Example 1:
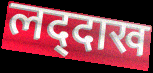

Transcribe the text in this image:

लद्‌दाख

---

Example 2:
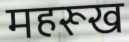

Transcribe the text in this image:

महरूख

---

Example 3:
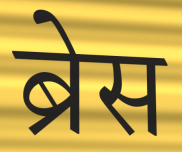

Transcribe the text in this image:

ब्रेस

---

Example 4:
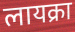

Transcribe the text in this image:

लायक्रा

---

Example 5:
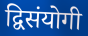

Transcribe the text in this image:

द्विसंयोगी